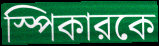
স্পিকারকে